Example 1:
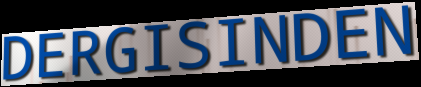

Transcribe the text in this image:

DERGISINDEN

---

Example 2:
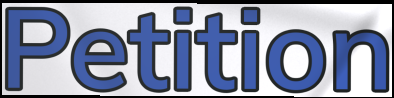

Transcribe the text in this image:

Petition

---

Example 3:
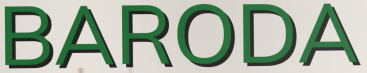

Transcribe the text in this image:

BARODA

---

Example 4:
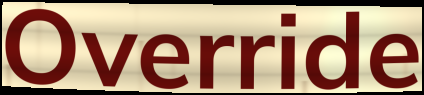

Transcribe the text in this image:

Override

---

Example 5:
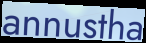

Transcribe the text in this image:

annustha